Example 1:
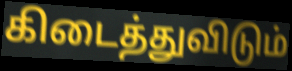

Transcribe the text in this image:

கிடைத்துவிடும்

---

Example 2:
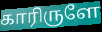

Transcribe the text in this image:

காரிருளே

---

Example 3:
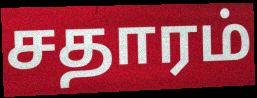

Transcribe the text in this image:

சதாரம்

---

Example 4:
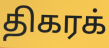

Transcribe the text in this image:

திகரக்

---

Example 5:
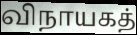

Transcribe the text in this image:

விநாயகத்